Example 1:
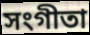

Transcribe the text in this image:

সংগীতা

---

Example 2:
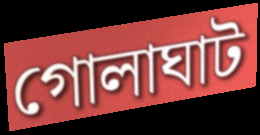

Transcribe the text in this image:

গোলাঘাট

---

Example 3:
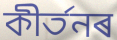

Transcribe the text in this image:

কীৰ্তনৰ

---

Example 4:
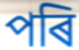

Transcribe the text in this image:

পৰি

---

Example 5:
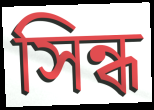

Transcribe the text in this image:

সিন্ধ